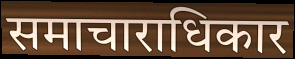
समाचाराधिकार